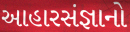
આહારસંજ્ઞાનો